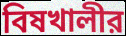
বিষখালীর